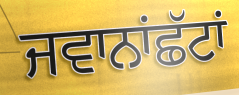
ਜਵਾਨਾਂਛੱਟਾਂ